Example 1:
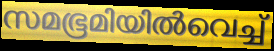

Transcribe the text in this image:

സമഭൂമിയിൽവെച്ച്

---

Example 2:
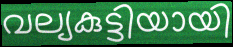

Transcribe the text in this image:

വല്യകുട്ടിയായി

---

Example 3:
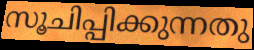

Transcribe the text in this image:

സൂചിപ്പിക്കുന്നതു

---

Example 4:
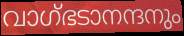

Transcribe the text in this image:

വാഗ്ഭടാനന്ദനും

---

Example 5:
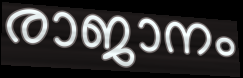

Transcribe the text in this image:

രാജാനം